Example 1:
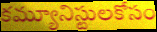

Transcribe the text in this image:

కమ్యూనిస్టులకోసం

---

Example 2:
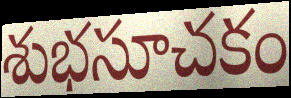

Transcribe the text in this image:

శుభసూచకం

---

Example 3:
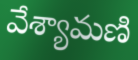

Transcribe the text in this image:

వేశ్యామణి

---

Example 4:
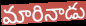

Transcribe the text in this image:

మారినాడు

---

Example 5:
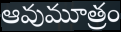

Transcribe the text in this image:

ఆవుమూత్రం